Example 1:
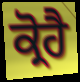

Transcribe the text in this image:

ਕ੍ਰੋਹੈ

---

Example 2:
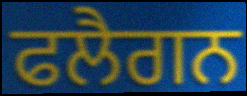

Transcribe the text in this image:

ਫਲੈਗਨ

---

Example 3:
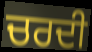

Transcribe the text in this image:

ਚਰਦੀ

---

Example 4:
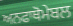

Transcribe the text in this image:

ਅਨਫਾਥੋਮੇਬਲ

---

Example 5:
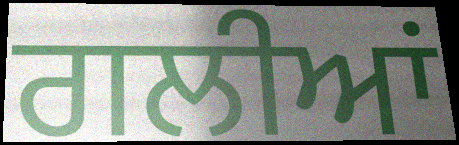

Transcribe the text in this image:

ਗਲੀਆਂ